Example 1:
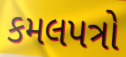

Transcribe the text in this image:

કમલપત્રો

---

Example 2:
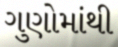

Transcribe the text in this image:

ગુણોમાંથી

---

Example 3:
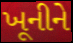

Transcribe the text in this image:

ખૂનીને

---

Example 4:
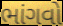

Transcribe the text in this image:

ભાંગવો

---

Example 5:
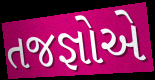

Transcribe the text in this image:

તજજ્ઞોએ